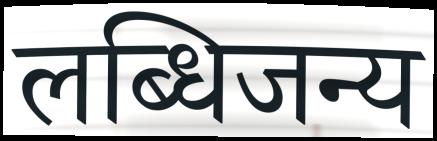
लब्धिजन्य